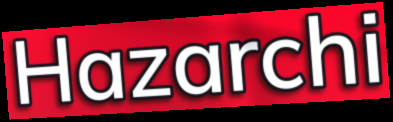
Hazarchi